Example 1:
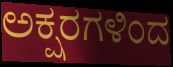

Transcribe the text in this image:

ಅಕ್ಷರಗಳಿಂದ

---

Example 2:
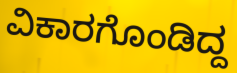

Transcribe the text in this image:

ವಿಕಾರಗೊಂಡಿದ್ದ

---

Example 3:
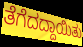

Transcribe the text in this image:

ತೆಗೆದದ್ದಾಯಿತು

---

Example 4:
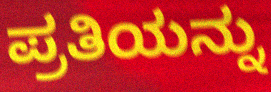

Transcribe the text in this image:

ಪ್ರತಿಯನ್ನು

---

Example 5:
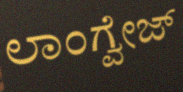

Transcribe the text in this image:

ಲಾಂಗ್ವೇಜ್